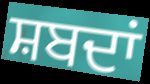
ਸ਼ਬਦਾਂ